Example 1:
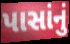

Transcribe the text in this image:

પાસાંનું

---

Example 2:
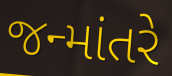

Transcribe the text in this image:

જન્માંતરે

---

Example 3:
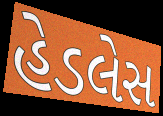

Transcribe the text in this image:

હેડલેસ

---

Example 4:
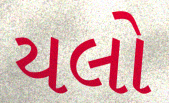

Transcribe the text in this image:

યલો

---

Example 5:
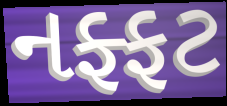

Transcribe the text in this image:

નફ્ફટ